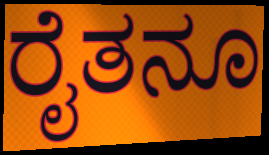
ರೈತನೂ